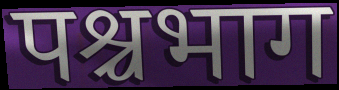
पश्चभाग